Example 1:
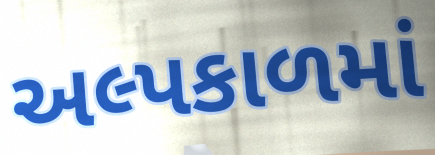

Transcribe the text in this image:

અલ્પકાળમાં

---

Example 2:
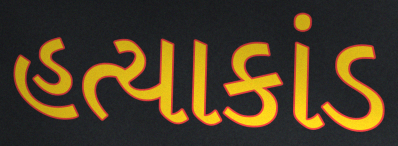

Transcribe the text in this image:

હત્યાકાંડ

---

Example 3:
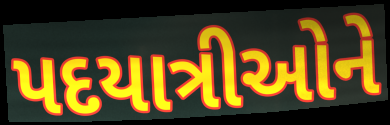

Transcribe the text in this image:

પદયાત્રીઓને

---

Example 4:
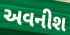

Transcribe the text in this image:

અવનીશ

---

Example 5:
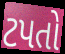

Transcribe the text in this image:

ટપતો